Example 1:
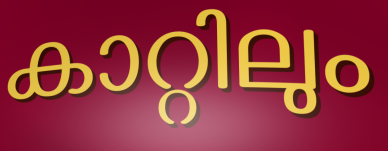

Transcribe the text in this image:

കാറ്റിലും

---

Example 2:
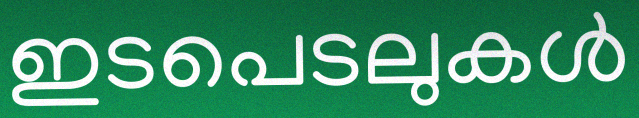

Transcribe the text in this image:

ഇടപെടലുകൾ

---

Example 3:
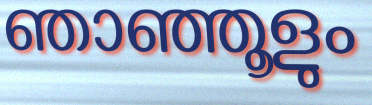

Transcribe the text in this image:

ഞാഞ്ഞൂളും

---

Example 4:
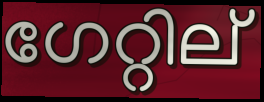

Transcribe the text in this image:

ഗേറ്റില്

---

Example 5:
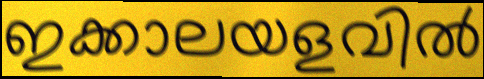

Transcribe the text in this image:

ഇക്കാലയളവിൽ